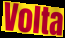
Volta